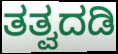
ತತ್ವದಡಿ